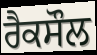
ਰੈਕਸੌਲ